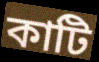
কাটি